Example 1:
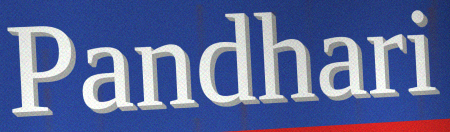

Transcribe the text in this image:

Pandhari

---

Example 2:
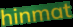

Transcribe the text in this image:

hinmat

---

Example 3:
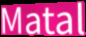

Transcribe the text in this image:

Matal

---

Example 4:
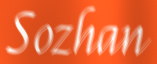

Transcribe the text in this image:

Sozhan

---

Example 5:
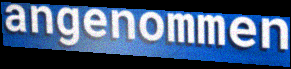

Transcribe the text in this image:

angenommen